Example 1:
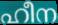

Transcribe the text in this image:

ഹീന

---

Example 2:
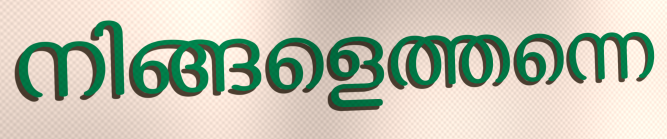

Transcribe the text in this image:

നിങ്ങളെത്തന്നെ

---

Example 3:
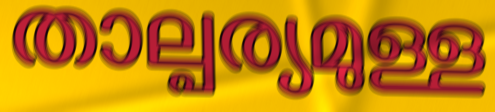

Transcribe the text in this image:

താല്പര്യമുള്ള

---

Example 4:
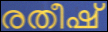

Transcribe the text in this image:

രതീഷ്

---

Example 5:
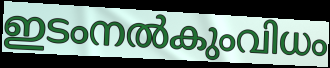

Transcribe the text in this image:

ഇടംനൽകുംവിധം